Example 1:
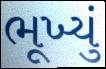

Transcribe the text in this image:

ભૂખ્યું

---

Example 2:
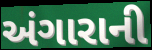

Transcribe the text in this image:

અંગારાની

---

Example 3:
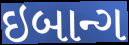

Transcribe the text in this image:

ઇબાન્ગ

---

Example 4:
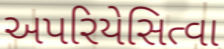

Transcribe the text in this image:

અપરિયેસિત્વા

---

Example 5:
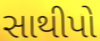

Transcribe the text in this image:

સાથીપો